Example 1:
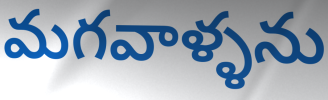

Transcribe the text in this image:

మగవాళ్ళను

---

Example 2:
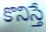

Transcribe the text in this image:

కొనిస్తే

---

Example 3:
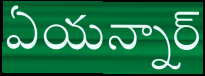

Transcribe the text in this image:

ఏయన్నార్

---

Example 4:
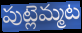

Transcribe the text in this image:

పుట్లెమ్మట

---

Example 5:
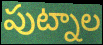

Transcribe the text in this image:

పుట్నాల